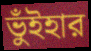
ভুঁইহার